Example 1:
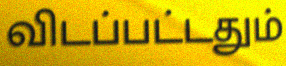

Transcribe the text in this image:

விடப்பட்டதும்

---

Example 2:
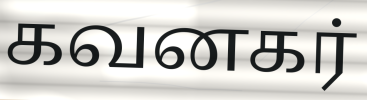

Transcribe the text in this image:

கவனகர்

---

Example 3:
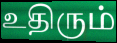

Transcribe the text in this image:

உதிரும்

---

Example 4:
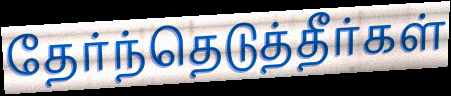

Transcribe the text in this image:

தேர்ந்தெடுத்தீர்கள்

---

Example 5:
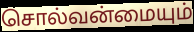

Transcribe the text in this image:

சொல்வன்மையும்